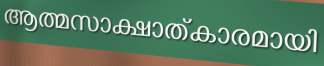
ആത്മസാക്ഷാത്കാരമായി